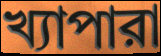
খ্যাপারা